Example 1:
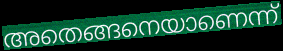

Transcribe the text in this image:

അതെങ്ങനെയാണെന്ന്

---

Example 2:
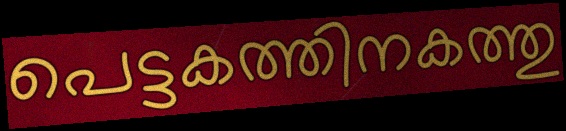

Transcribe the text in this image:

പെട്ടകത്തിനകത്തു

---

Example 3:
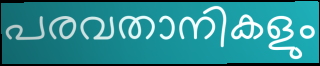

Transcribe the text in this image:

പരവതാനികളും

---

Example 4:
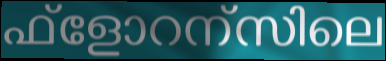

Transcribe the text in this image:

ഫ്ളോറന്സിലെ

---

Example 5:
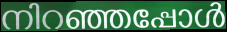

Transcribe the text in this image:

നിറഞ്ഞപ്പോൾ